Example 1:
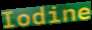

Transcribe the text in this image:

Iodine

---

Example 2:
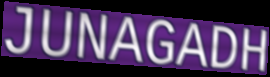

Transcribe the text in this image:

JUNAGADH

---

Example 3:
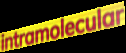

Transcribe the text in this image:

intramolecular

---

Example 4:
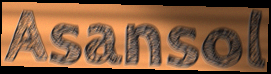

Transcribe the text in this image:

Asansol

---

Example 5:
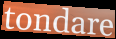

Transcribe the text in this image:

tondare